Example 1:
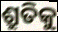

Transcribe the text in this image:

ଶ୍ରୁତିକୁ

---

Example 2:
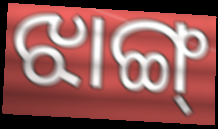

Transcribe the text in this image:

ଝାଙ୍ଗ୍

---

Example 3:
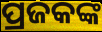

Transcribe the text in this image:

ପ୍ରଜକଙ୍କ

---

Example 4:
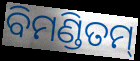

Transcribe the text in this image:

ବିମଣ୍ଡିତମ୍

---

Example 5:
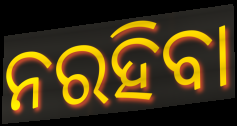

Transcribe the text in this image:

ନରହିବା